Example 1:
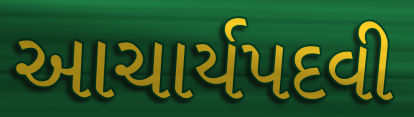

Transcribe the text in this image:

આચાર્યપદવી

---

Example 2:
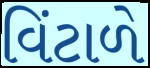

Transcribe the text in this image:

વિંટાળે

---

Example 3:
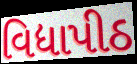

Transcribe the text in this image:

વિદ્યાપીઠ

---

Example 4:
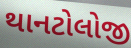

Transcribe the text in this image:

થાનટોલોજી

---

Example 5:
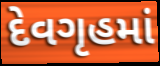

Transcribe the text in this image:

દેવગૃહમાં